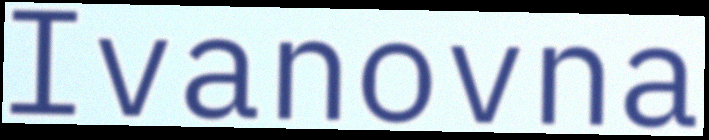
Ivanovna